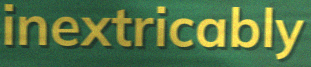
inextricably